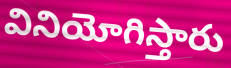
వినియోగిస్తారు